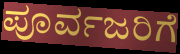
ಪೂರ್ವಜರಿಗೆ